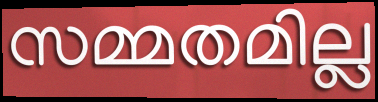
സമ്മതമില്ല